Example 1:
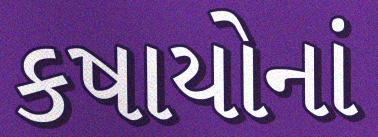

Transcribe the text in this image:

કષાયોનાં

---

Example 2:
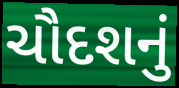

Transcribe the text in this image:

ચૌદશનું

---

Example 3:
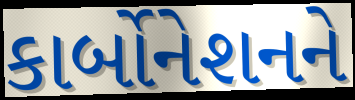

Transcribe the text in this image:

કાર્બોનેશનને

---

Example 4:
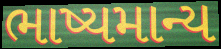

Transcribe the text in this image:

ભાષ્યમાન્ય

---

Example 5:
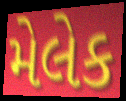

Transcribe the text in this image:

મેલેક